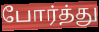
போர்த்து